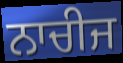
ਨਾਚੀਜ